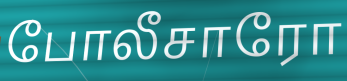
போலீசாரோ